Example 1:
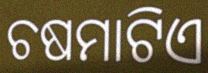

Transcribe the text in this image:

ଚଷମାଟିଏ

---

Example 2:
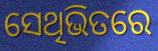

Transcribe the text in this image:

ସେଥିଭିତରେ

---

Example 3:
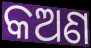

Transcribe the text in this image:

କଅଣ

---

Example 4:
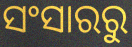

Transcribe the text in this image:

ସଂସାରରୁ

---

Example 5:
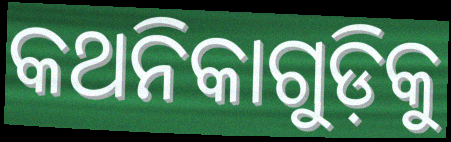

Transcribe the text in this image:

କଥନିକାଗୁଡ଼ିକୁ